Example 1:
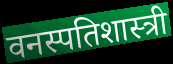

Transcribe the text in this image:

वनस्पतिशास्त्री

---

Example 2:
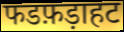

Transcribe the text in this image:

फडफ़ड़ाहट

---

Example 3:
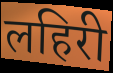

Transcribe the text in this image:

लहिरी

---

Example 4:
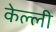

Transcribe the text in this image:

केल्ली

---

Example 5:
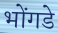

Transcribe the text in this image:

भोंगडे